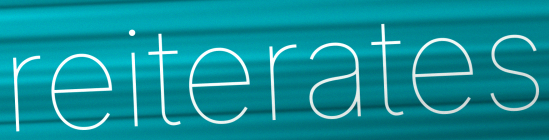
reiterates